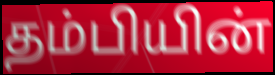
தம்பியின்